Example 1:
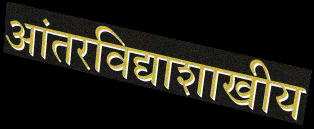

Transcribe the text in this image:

आंतरविद्याशाखीय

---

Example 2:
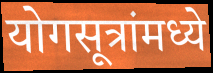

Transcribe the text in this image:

योगसूत्रांमध्ये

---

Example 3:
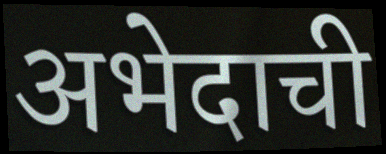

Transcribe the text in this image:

अभेदाची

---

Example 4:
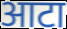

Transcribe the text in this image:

आटा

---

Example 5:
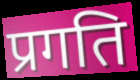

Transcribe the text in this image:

प्रगति